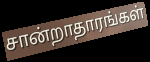
சான்றாதாரங்கள்